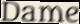
Dame